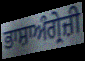
ਭਾਸ਼ਾਅੰਗ੍ਰੇਜ਼ੀ